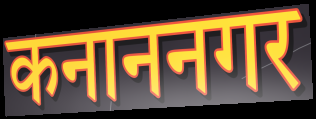
कनाननगर